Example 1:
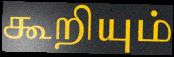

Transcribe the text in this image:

கூறியும்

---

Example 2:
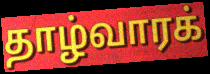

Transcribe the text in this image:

தாழ்வாரக்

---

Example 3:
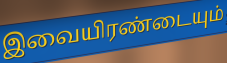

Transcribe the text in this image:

இவையிரண்டையும்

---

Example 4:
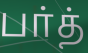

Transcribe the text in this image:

பர்த்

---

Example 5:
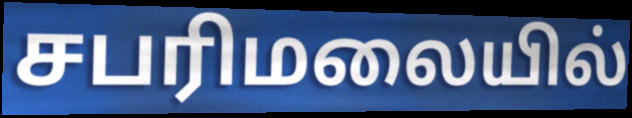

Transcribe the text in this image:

சபரிமலையில்